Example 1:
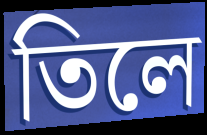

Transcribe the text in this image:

তিলে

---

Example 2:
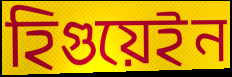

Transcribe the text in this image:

হিগুয়েইন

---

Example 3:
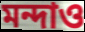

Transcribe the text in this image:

মন্দাও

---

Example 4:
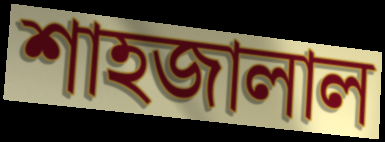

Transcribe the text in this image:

শাহজালাল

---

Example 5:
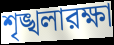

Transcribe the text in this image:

শৃঙ্খলারক্ষা